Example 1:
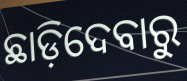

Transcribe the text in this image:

ଛାଡ଼ିଦେବାରୁ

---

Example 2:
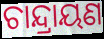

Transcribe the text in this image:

ଚାନ୍ଦ୍ରାୟଣ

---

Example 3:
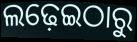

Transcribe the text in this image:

ଲଢ଼େଇଠାରୁ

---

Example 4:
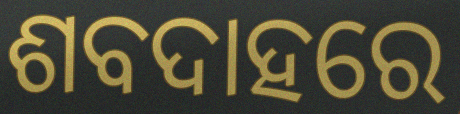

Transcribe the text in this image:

ଶବଦାହରେ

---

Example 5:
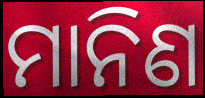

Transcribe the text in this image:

ମାନିଣ